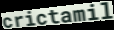
crictamil